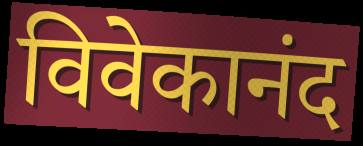
विवेकानंद